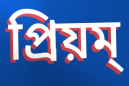
প্রিয়ম্